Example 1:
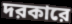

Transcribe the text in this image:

দরকারে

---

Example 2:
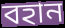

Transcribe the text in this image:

বহান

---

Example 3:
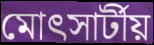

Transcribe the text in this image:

মোৎসার্টীয়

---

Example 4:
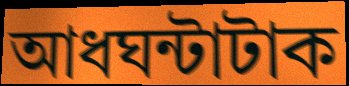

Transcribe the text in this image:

আধঘন্টাটাক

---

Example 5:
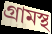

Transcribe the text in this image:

গ্রামস্থ